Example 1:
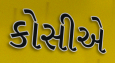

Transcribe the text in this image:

કોસીએ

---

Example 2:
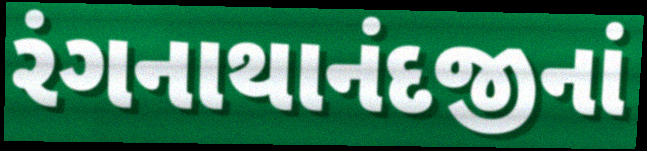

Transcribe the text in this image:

રંગનાથાનંદજીનાં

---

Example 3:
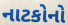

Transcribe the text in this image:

નાટકોનો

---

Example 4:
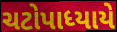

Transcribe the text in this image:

ચટોપાધ્યાયે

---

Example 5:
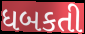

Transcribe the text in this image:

ધબકતી